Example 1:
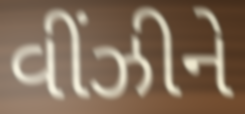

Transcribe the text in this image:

વીંઝીને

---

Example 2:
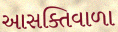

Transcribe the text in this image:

આસક્તિવાળા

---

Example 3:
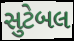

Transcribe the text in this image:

સુટેબલ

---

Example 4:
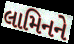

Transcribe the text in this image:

લામિનને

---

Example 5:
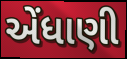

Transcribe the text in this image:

એંધાણી